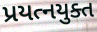
પ્રયત્નયુક્ત